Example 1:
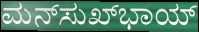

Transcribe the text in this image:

ಮನ್‌ಸುಖ್‌ಭಾಯ್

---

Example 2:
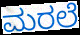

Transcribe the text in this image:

ಮರಲೆ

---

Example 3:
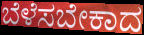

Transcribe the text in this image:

ಬೆಳೆಸಬೇಕಾದ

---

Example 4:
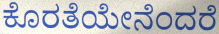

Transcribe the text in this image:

ಕೊರತೆಯೇನೆಂದರೆ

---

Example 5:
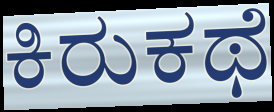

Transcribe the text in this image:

ಕಿರುಕಥೆ